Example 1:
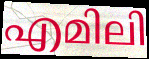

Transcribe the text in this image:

എമിലി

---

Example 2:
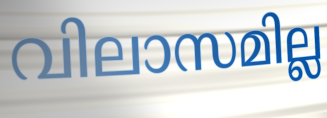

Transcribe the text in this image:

വിലാസമില്ല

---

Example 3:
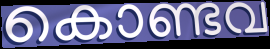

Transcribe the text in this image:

കൊണ്ടവ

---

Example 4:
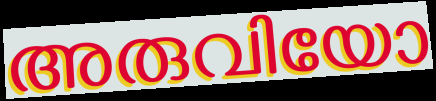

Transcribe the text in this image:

അരുവിയോ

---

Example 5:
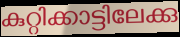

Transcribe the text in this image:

കുറ്റിക്കാട്ടിലേക്കു